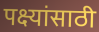
पक्ष्यांसाठी